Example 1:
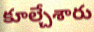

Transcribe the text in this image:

కూల్చేశారు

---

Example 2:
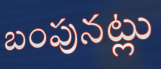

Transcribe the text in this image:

బంపునట్లు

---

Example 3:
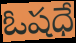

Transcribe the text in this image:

ఓషధే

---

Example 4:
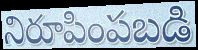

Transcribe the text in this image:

నిరూపింపబడి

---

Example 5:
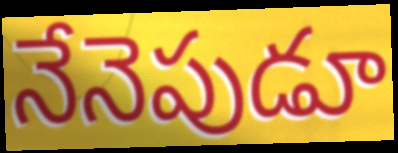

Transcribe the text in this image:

నేనెపుడూ